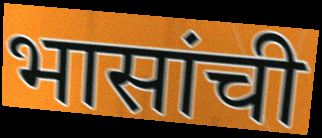
भासांची